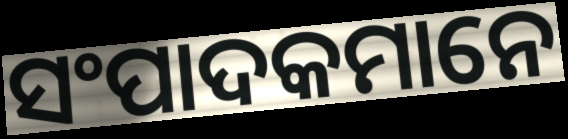
ସଂପାଦକମାନେ